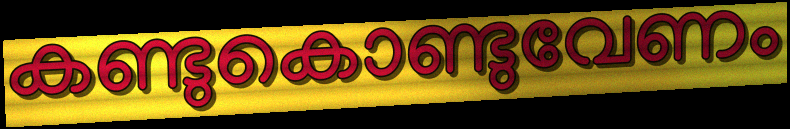
കണ്ടുകൊണ്ടുവേണം